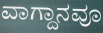
ವಾಗ್ದಾನವೂ